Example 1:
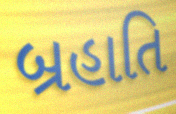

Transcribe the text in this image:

બ્રહાતિ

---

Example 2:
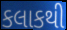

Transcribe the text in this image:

કલાકથી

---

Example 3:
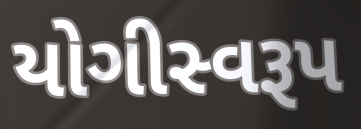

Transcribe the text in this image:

યોગીસ્વરૂપ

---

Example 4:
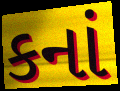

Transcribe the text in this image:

કનાં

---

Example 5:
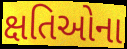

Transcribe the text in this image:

ક્ષતિઓના